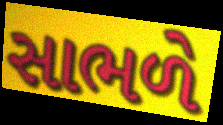
સાભળે